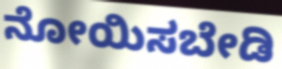
ನೋಯಿಸಬೇಡಿ